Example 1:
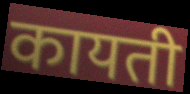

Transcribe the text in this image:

कायती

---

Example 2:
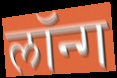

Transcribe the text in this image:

लॉन्ग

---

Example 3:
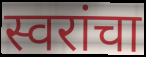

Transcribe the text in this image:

स्वरांचा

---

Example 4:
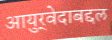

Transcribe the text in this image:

आयुर्वेदाबद्दल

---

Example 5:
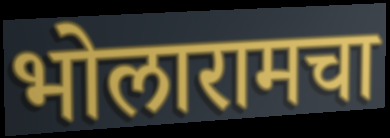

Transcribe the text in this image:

भोलारामचा